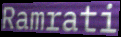
Ramrati